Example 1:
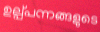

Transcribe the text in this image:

ഉല്പ്പന്നങ്ങളുടെ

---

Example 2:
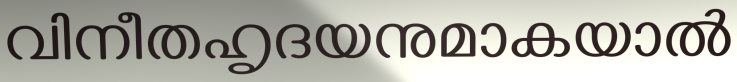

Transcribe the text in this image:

വിനീതഹൃദയനുമാകയാൽ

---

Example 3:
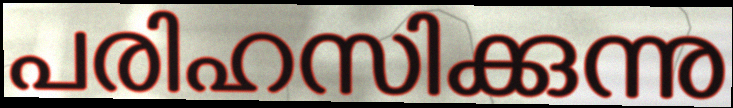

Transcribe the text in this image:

പരിഹസിക്കുന്നു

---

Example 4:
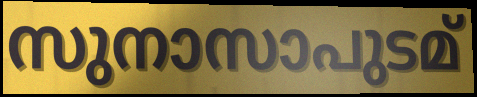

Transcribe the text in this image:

സുനാസാപുടമ്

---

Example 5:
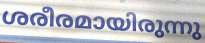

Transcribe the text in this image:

ശരീരമായിരുന്നു